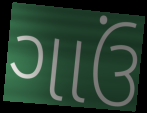
ગાઉં